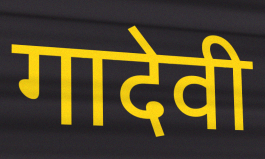
गादेवी